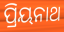
ପ୍ରିୟନାଥ